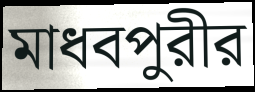
মাধবপুরীর